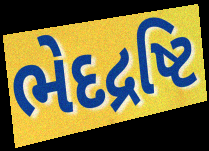
ભેદદ્રષ્ટિ